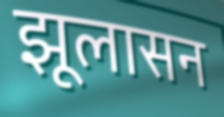
झूलासन